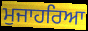
ਮੁਜਾਹਰਿਆ